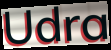
Udra